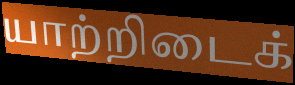
யாற்றிடைக்